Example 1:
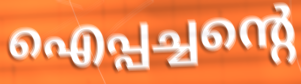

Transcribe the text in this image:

ഐപ്പച്ചന്റെ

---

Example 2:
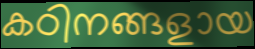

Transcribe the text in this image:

കഠിനങ്ങളായ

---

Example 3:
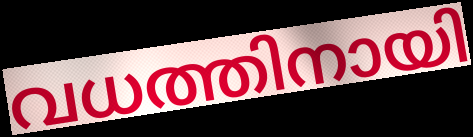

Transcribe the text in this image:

വധത്തിനായി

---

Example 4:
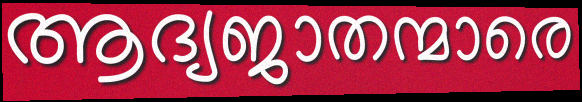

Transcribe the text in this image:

ആദ്യജാതന്മാരെ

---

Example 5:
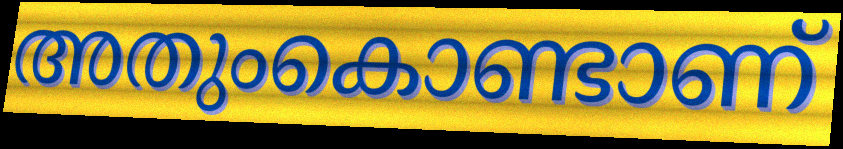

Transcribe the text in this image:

അതുംകൊണ്ടാണ്